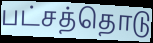
பட்சத்தொடு